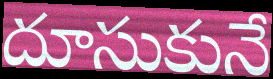
దూసుకునే